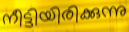
നീട്ടിയിരിക്കുന്നു